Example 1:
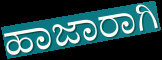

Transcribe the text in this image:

ಹಾಜಾರಾಗಿ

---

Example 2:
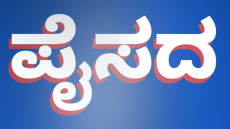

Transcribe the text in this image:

ಪೈಸದ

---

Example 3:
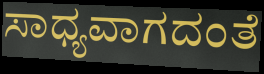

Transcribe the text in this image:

ಸಾಧ್ಯವಾಗದಂತೆ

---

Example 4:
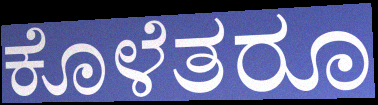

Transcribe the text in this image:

ಕೊಳೆತರೂ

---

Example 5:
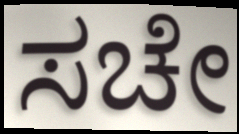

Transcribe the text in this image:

ಸಚೇ